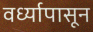
वर्ध्यापासून